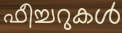
ഫീച്ചറുകൾ